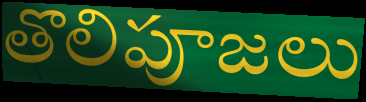
తొలిపూజలు